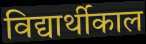
विद्यार्थीकाल